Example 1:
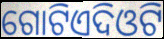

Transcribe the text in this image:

ଗୋଟିଏଦିଓଟି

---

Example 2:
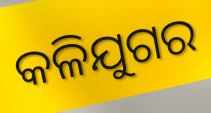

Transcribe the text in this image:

କଳିଯୁଗର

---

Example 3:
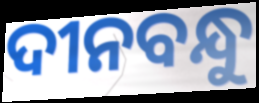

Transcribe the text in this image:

ଦୀନବନ୍ଧୁ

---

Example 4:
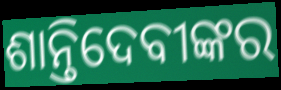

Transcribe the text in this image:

ଶାନ୍ତିଦେବୀଙ୍କର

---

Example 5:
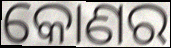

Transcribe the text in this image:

କୋଣର